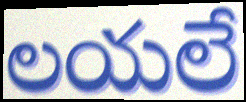
లయలే